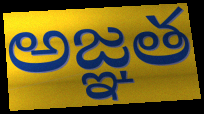
అజ్ఞత